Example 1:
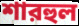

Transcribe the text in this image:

শারহুল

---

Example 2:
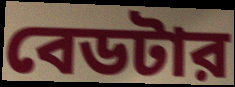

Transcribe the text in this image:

বেডটার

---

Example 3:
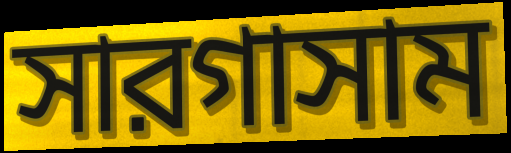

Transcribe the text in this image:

সারগাসাম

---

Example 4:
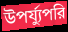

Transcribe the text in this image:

উপর্য্যুপরি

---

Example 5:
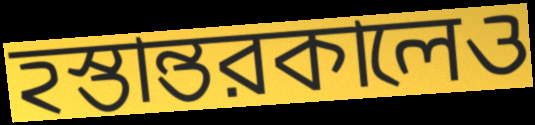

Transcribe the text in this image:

হস্তান্তরকালেও